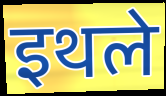
इथले